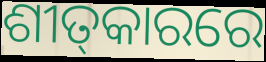
ଶୀତ୍‌କାରରେ